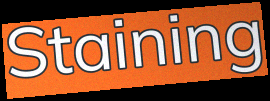
Staining